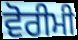
ਵੋਰੀਮੀ